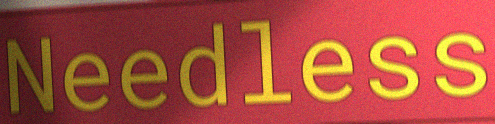
Needless